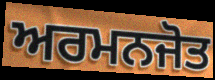
ਅਰਮਨਜੋਤ